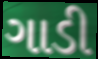
ગાડી